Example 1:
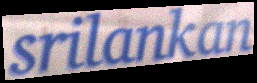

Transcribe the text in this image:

srilankan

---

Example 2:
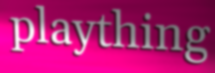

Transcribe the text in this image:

plaything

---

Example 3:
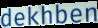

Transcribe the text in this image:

dekhben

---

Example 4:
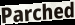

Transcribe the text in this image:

Parched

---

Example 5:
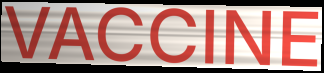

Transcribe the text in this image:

VACCINE